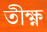
তীক্ষ্ণ